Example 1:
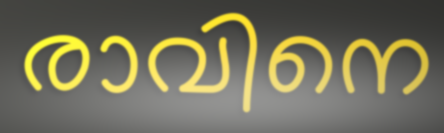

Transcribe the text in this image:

രാവിനെ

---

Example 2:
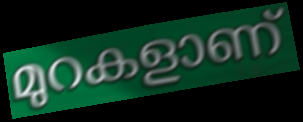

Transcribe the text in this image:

മുറകളാണ്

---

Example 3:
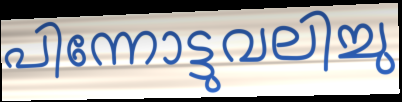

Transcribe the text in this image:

പിന്നോട്ടുവലിച്ചു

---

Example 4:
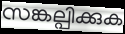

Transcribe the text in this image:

സങ്കല്പിക്കുക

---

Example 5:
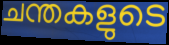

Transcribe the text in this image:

ചന്തകളുടെ